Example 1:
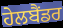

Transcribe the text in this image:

ਹੇਲਬੈਂਡਰ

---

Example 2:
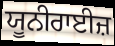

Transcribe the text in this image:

ਯੂਨੀਰਾਈਜ਼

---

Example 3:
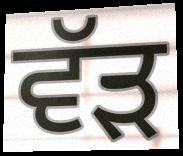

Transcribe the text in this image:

ਵੱੜ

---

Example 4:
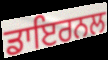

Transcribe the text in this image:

ਡਾਇਰਨਲ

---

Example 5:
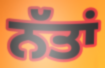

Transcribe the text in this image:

ਨੱਤਾਂ